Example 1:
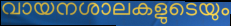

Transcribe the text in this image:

വായനശാലകളുടെയും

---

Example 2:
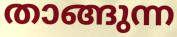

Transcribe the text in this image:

താങ്ങുന്ന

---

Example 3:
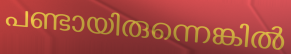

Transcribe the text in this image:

പണ്ടായിരുന്നെങ്കിൽ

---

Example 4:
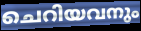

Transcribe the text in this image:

ചെറിയവനും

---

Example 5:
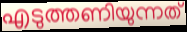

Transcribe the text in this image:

എടുത്തണിയുന്നത്